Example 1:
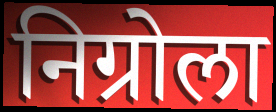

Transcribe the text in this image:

निग्रोला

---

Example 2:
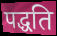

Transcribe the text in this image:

पद्धति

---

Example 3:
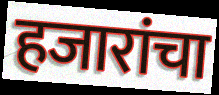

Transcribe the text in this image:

हजारांचा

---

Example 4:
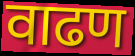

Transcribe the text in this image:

वाढण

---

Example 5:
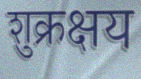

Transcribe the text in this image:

शुक्रक्षय